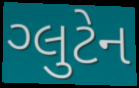
ગ્લુટેન